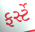
ફર્સ્ટે